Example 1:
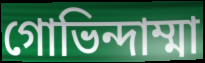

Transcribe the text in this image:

গোভিন্দাম্মা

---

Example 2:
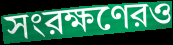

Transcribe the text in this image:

সংরক্ষণেরও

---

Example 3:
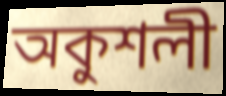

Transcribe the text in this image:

অকুশলী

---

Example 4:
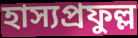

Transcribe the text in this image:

হাস্যপ্রফুল্ল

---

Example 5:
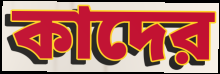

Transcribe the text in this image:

কাদের